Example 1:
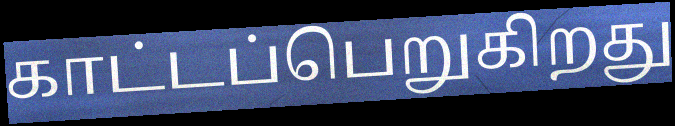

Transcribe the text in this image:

காட்டப்பெறுகிறது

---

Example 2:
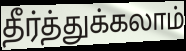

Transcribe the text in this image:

தீர்த்துக்கலாம்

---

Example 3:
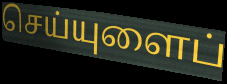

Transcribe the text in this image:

செய்யுளைப்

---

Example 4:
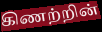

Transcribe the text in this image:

கிணற்றின்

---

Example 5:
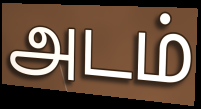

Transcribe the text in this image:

அடம்